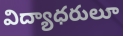
విద్యాధరులూ